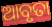
ଆବୃତା